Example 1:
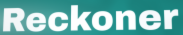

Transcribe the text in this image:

Reckoner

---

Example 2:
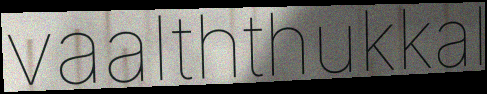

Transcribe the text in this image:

vaalththukkal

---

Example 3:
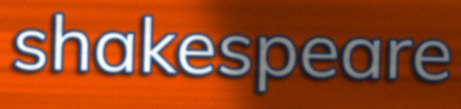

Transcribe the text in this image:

shakespeare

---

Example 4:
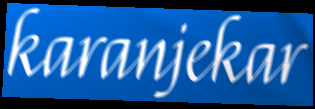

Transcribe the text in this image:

karanjekar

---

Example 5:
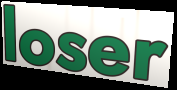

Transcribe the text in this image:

loser